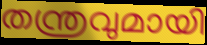
തന്ത്രവുമായി